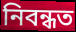
নিবন্ধত